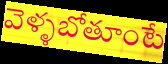
వెళ్ళబోతూంటే